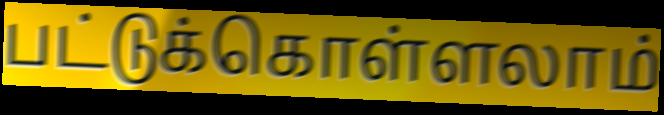
பட்டுக்கொள்ளலாம்